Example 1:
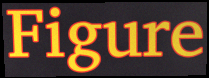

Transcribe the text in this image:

Figure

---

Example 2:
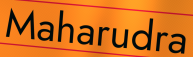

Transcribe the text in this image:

Maharudra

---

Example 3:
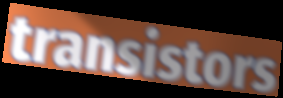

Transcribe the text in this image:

transistors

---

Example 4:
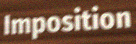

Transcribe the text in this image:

Imposition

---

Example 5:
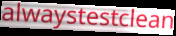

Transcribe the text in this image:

alwaystestclean